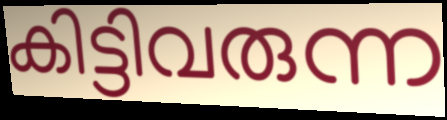
കിട്ടിവരുന്ന